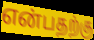
என்பதற்கு